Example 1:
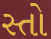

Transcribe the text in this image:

સ્તો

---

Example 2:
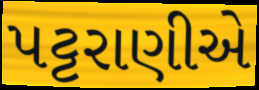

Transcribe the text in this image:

પટ્ટરાણીએ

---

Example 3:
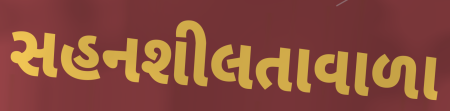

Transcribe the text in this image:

સહનશીલતાવાળા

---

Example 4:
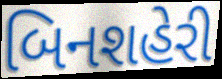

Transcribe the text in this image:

બિનશહેરી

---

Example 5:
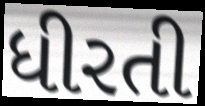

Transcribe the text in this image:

ધીરતી